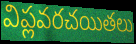
విప్లవరచయితలు